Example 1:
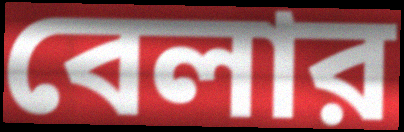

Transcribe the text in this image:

বেলার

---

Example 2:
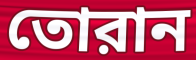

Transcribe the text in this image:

তোরান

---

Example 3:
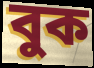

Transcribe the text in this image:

বুক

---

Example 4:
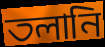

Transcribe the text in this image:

তলানি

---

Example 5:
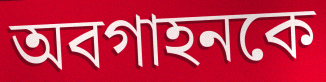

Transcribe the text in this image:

অবগাহনকে